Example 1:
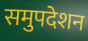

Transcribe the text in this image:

समुपदेशन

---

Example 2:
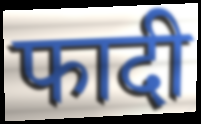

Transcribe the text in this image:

फादी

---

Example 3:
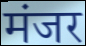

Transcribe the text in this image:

मंजर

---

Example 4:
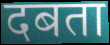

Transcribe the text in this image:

दबता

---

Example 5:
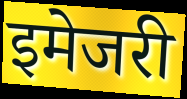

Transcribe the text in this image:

इमेजरी